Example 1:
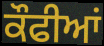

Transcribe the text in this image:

ਕੌਫੀਆਂ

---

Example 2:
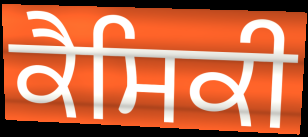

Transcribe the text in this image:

ਕੈਸਿਕੀ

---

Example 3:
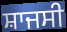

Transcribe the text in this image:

ਸ਼ਾਜਸੀ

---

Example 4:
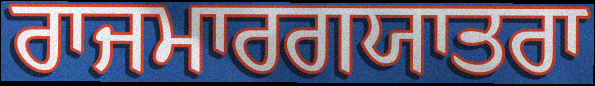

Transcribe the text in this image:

ਰਾਜਮਾਰਗਯਾਤਰਾ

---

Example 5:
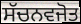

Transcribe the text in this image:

ਸੱਚਨਵਜੋਤ